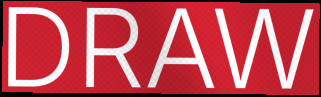
DRAW